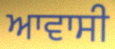
ਆਵਾਸੀ